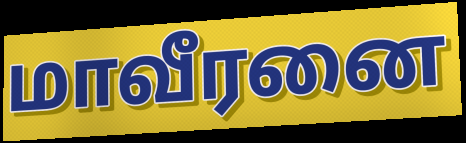
மாவீரனை